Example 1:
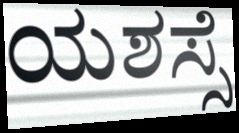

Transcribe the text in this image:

ಯಶಸ್ಸೆ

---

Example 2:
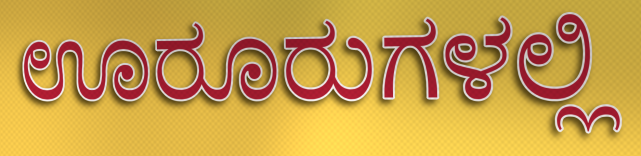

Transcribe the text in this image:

ಊರೂರುಗಳಲ್ಲಿ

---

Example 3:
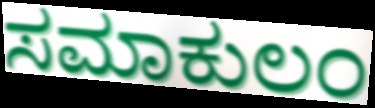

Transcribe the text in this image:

ಸಮಾಕುಲಂ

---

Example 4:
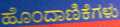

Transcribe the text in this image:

ಹೊಂದಾಣಿಕೆಗಳು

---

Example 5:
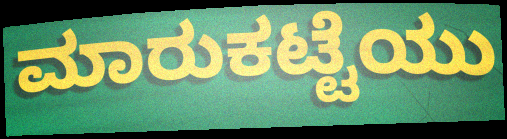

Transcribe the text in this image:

ಮಾರುಕಟ್ಟೆಯು